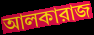
আলকারাজ